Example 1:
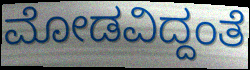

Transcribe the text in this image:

ಮೋಡವಿದ್ದಂತೆ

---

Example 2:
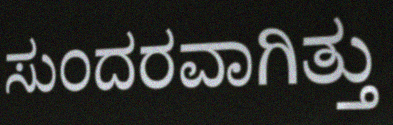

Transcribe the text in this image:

ಸುಂದರವಾಗಿತ್ತು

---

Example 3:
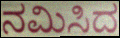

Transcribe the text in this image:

ನಮಿಸಿದ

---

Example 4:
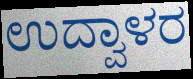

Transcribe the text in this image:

ಉದ್ವಾಳರ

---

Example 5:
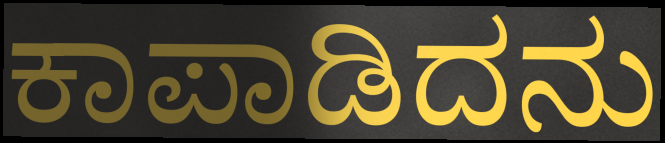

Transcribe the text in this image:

ಕಾಪಾಡಿದನು